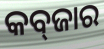
କବ୍‍ଜାର